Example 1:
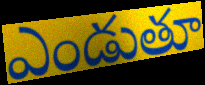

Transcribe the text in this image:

ఎండుతూ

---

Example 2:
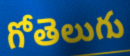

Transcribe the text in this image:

గోతెలుగు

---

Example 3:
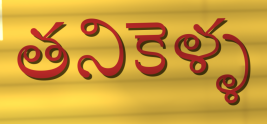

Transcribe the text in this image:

తనికెళ్ళ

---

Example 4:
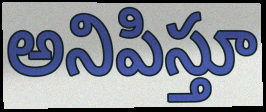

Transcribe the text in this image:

అనిపిస్తూ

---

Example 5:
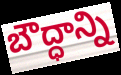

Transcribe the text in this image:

బౌద్ధాన్ని